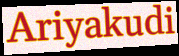
Ariyakudi